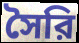
সৈরি